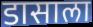
डासाला